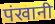
पंखानी